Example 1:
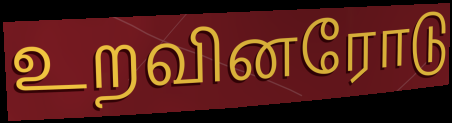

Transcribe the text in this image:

உறவினரோடு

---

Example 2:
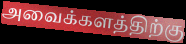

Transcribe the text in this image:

அவைக்களத்திற்கு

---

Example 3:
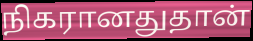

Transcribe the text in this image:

நிகரானதுதான்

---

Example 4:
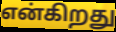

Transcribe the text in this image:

என்கிறது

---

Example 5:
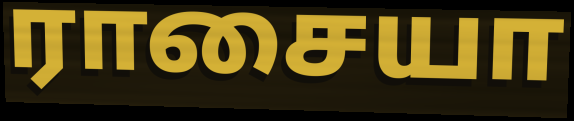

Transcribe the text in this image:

ராசையா